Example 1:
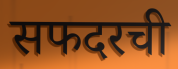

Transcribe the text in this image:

सफदरची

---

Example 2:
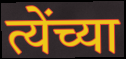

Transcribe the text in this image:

त्येंच्या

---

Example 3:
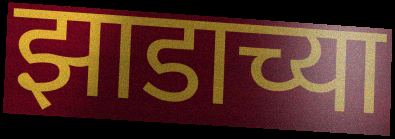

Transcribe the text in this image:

झाडाच्या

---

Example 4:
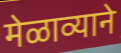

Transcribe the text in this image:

मेळाव्याने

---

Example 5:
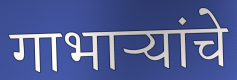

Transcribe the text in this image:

गाभाऱ्यांचे